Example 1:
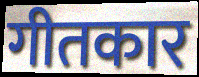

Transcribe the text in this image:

गीतकार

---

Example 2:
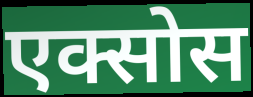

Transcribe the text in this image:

एक्सोस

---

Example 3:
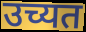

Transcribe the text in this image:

उच्यत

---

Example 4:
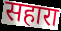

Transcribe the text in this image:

सहारा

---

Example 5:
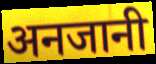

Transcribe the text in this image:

अनजानी